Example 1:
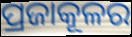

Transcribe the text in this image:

ପ୍ରଜାକୂଳର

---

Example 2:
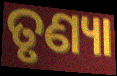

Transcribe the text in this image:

ତୃଣ୍ୟା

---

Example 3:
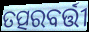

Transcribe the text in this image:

ତତ୍ପରବର୍ତ୍ତୀ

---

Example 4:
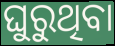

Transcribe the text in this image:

ଘୁରୁଥିବା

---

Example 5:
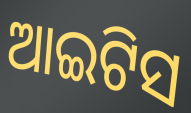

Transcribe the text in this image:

ଆଇଟିସ